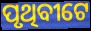
ପୃଥିବୀଟେ